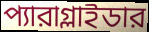
প্যারাগ্লাইডার